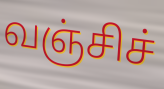
வஞ்சிச்